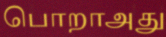
பொறாஅது